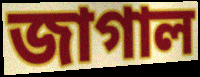
জাগাল